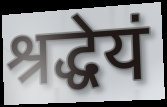
श्रद्धेयं